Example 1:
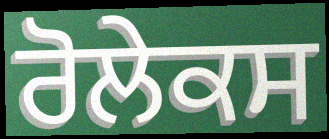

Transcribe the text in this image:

ਰੋਲੇਕਸ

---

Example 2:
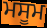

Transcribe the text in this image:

ਮਸੂਮ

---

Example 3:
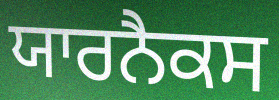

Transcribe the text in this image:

ਯਾਰਨੈਕਸ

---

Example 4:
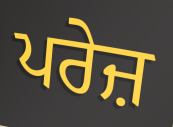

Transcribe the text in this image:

ਪਰੇਜ਼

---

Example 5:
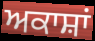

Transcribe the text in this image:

ਅਕਾਸ਼ਾਂ